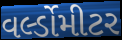
વર્લ્ડોમીટર